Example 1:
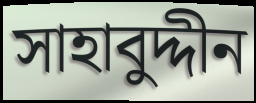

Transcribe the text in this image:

সাহাবুদ্দীন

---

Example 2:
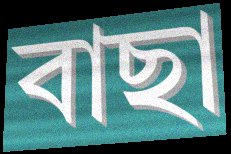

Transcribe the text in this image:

বাছা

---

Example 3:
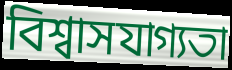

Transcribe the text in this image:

বিশ্বাসযাগ্যতা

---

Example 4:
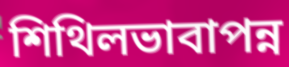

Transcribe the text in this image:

শিথিলভাবাপন্ন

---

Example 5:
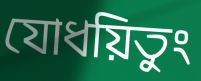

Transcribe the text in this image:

যোধয়িতুং